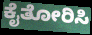
ಕೈತೋರಿಸಿ